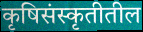
कृषिसंस्कृतीतील